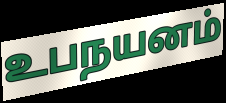
உபநயனம்